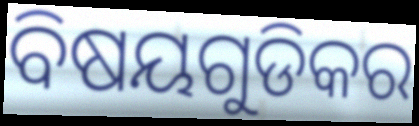
ବିଷୟଗୁଡିକର